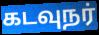
கடவுநர்